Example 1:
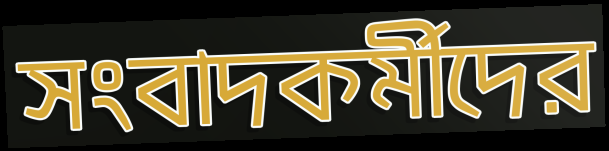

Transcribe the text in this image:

সংবাদকর্মীদের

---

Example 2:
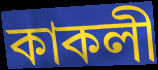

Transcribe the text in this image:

কাকলী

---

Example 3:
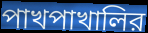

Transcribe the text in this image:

পাখপাখালির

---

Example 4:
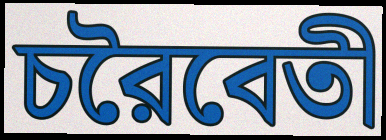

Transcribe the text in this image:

চরৈবেতী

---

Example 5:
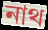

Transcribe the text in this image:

নাথ